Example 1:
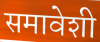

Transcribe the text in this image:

समावेशी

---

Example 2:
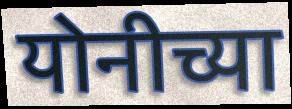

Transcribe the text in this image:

योनीच्या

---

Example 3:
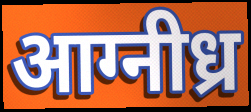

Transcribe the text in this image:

आग्नीध्र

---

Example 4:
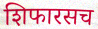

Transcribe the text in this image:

शिफारसच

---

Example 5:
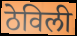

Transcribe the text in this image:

ठेविली